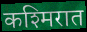
कश्मिरात